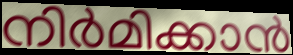
നിർമിക്കാൻ